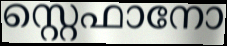
സ്റ്റെഫാനോ